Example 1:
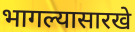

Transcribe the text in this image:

भागल्यासारखे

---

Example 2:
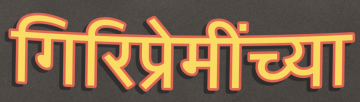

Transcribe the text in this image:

गिरिप्रेमींच्या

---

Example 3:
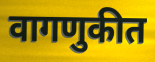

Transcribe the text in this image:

वागणुकीत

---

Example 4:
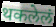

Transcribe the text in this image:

थकलेलं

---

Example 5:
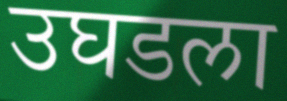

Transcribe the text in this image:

उघडला